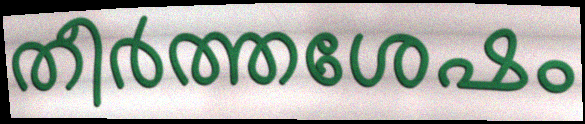
തീർത്തശേഷം